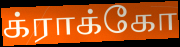
க்ராக்கோ